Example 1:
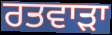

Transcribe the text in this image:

ਰਤਵਾੜਾ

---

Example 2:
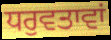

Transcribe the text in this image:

ਧਰੁਵਤਾਵਾਂ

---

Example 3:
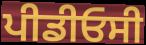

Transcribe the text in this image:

ਪੀਡੀਓਸੀ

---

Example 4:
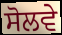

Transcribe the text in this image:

ਸੋਲਵੇ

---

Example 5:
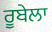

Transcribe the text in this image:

ਰੂਬੇਲਾ